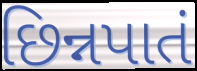
છિન્નપાતં